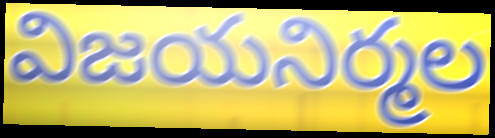
విజయనిర్మల